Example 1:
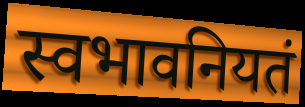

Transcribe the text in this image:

स्वभावनियतं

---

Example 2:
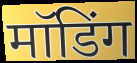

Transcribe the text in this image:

मॉडिंग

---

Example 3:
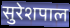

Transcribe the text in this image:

सुरेशपाल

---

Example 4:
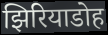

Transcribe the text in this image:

झिरियाडोह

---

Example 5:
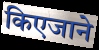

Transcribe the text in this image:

किएजाने